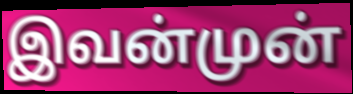
இவன்முன்